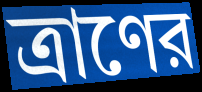
ত্রাণের